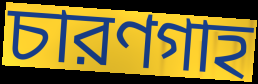
চারণগাহ